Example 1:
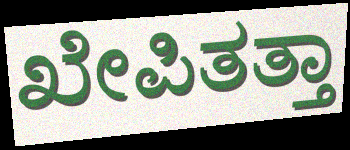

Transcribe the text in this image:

ಖೇಪಿತತ್ತಾ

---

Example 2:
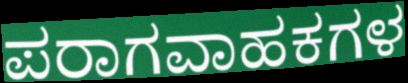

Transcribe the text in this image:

ಪರಾಗವಾಹಕಗಳ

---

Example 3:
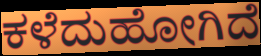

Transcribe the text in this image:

ಕಳೆದುಹೋಗಿದೆ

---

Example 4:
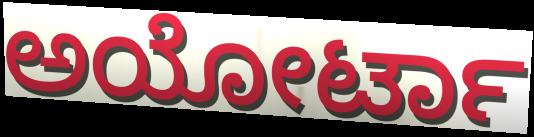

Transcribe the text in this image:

ಅಯೋರ್ಟಾ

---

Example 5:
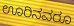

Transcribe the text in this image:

ಊರಿನವರೂ